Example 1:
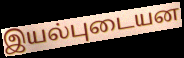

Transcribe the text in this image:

இயல்புடையன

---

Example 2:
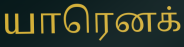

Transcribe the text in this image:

யாரெனக்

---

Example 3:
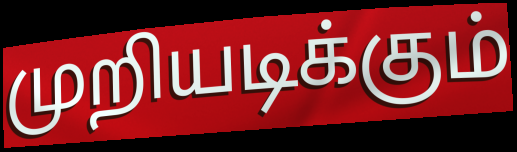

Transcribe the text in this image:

முறியடிக்கும்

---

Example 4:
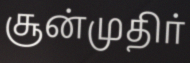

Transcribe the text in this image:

சூன்முதிர்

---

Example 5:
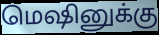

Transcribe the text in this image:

மெஷினுக்கு